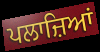
ਪਲਾਜ਼ਿਆਂ